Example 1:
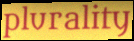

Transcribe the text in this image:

plurality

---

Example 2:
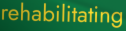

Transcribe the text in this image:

rehabilitating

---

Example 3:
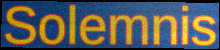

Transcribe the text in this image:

Solemnis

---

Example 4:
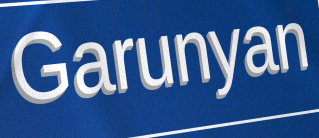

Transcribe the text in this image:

Garunyan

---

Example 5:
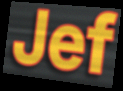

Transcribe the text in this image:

Jef